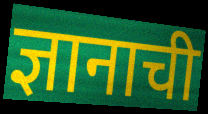
ज्ञानाची